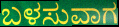
ಬಳಸುವಾಗ